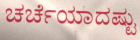
ಚರ್ಚೆಯಾದಷ್ಟು